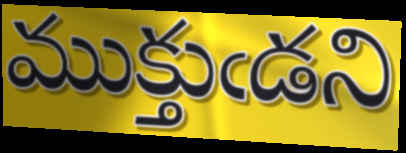
ముక్తుఁడని